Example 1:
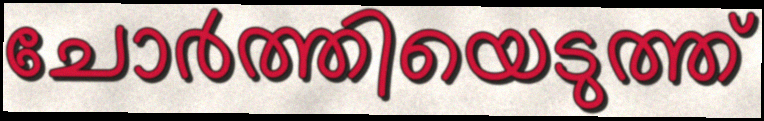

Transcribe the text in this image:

ചോർത്തിയെടുത്ത്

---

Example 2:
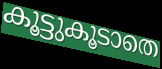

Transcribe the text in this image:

കൂട്ടുകൂടാതെ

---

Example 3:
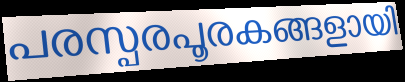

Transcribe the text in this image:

പരസ്പരപൂരകങ്ങളായി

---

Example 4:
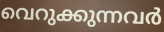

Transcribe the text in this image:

വെറുക്കുന്നവർ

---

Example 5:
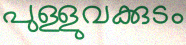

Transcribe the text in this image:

പുള്ളുവക്കുടം